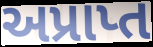
અપ્રાપ્ત